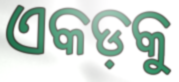
ଏକଡ଼କୁ